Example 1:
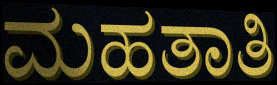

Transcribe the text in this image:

ಮಹತಾತಿ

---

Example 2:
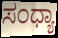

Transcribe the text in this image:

ಸಂಧ್ಯಾ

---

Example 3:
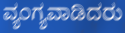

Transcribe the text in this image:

ವ್ಯಂಗ್ಯವಾಡಿದರು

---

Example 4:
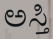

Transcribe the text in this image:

ಅಸ್ತಿ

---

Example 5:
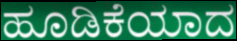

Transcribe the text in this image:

ಹೂಡಿಕೆಯಾದ